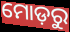
ମୋଡ଼ରୁ